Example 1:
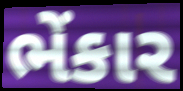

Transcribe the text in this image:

ભેંકાર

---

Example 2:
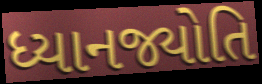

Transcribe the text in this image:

ધ્યાનજ્યોતિ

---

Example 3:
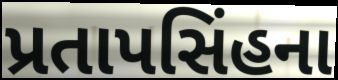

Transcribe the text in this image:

પ્રતાપસિંહના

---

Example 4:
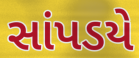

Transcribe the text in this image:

સાંપડયે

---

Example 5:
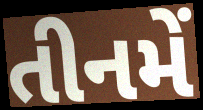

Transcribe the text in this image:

તીનમેં